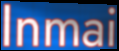
Inmai